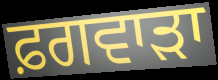
ਫ਼ਗਵਾੜਾ